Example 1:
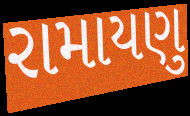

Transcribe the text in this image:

રામાયણુ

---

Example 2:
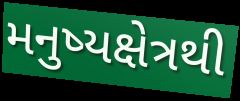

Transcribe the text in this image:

મનુષ્યક્ષેત્રથી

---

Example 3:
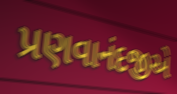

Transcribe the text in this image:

પ્રણવાનંદજીએ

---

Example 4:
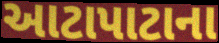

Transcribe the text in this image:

આટાપાટાના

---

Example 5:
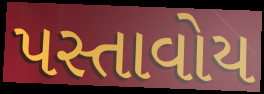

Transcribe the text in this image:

પસ્તાવોય